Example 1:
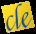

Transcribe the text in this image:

cle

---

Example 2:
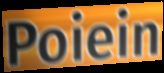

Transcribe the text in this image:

Poiein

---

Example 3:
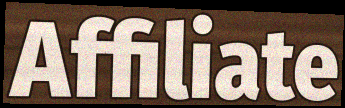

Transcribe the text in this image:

Affiliate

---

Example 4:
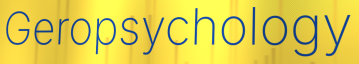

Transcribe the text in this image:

Geropsychology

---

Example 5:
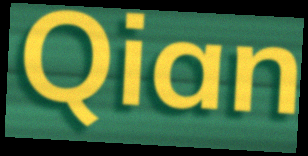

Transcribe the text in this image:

Qian